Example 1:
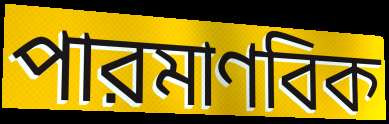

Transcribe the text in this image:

পারমাণবিক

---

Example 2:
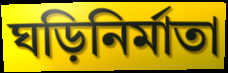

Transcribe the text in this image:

ঘড়িনির্মাতা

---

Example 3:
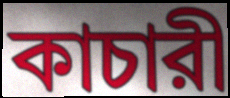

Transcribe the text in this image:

কাচারী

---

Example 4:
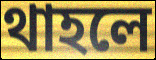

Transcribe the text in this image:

থাহলে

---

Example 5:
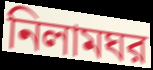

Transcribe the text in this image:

নিলামঘর